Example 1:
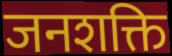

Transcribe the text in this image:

जनशक्ति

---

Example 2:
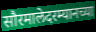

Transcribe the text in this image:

सौरमालेदरम्यानच्या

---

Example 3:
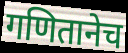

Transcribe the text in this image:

गणितानेच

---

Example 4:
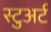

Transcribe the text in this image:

स्टुअर्ट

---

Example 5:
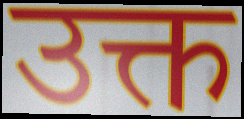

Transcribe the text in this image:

उक्त